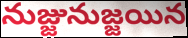
నుజ్జునుజ్జయిన